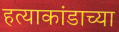
हत्याकांडाच्या